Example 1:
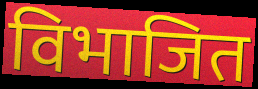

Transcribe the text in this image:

विभाजित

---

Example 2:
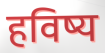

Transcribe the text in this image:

हविष्य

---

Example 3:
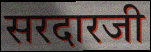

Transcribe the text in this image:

सरदारजी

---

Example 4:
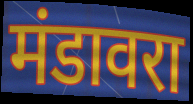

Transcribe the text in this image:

मंडावरा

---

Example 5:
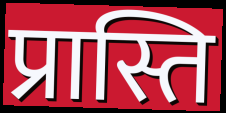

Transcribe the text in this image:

प्रास्ति